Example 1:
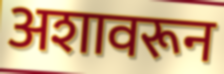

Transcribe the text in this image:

अशावरून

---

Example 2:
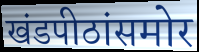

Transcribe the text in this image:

खंडपीठांसमोर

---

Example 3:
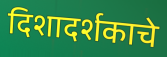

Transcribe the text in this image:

दिशादर्शकाचे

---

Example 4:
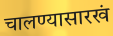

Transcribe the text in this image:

चालण्यासारखं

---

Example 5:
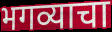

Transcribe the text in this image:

भगव्याचा